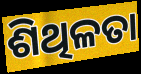
ଶିଥିଳତା